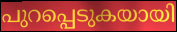
പുറപ്പെടുകയായി